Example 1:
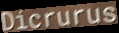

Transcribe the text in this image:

Dicrurus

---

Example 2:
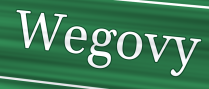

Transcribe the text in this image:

Wegovy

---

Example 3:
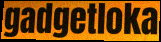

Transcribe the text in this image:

gadgetloka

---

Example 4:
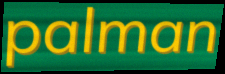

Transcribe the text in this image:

palman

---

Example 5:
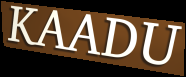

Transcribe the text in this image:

KAADU